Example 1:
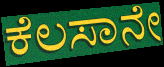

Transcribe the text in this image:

ಕೆಲಸಾನೇ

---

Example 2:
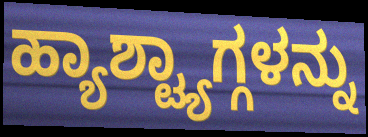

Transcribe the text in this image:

ಹ್ಯಾಶ್ಟ್ಯಾಗ್ಗಳನ್ನು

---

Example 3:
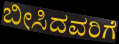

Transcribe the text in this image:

ಬೀಸಿದವರಿಗೆ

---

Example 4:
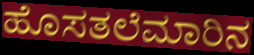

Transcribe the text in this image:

ಹೊಸತಲೆಮಾರಿನ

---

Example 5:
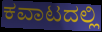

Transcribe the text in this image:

ಕವಾಟದಲ್ಲಿ